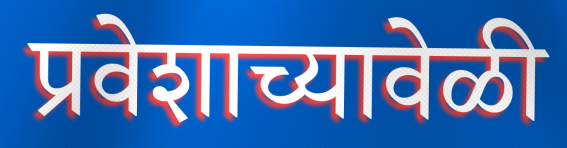
प्रवेशाच्यावेळी